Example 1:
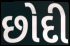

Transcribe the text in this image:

છોદી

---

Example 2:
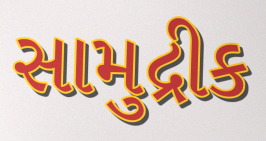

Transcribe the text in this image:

સામુદ્રીક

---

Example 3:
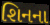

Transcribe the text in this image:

શિનના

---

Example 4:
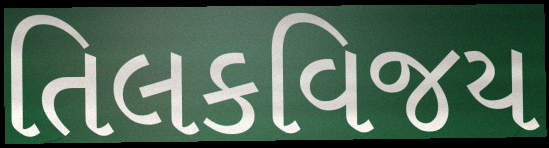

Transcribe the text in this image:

તિલકવિજય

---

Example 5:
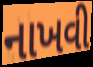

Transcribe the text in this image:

નાખવી